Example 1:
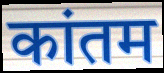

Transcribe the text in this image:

कांतम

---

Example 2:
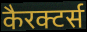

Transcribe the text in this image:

कैरक्टर्स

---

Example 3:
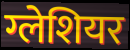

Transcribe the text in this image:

ग्लेशियर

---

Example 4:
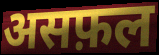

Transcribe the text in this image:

असफ़ल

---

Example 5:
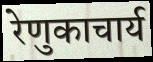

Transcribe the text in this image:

रेणुकाचार्य